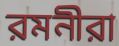
রমনীরা